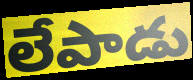
లేపాడు